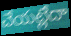
చేయట్లేదా